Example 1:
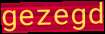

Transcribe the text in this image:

gezegd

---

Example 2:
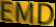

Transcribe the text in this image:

EMD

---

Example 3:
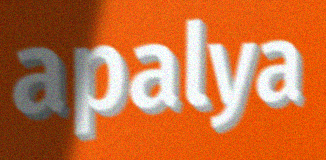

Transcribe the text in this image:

apalya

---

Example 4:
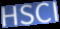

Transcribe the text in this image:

HSCI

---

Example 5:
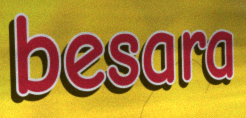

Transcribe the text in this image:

besara